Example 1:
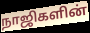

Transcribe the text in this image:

நாஜிகளின்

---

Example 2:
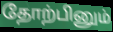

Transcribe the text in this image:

தோற்பினும்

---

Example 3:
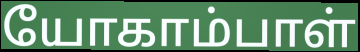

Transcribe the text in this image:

யோகாம்பாள்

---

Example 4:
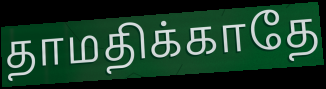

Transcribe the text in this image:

தாமதிக்காதே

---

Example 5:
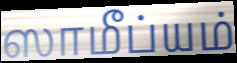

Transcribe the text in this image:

ஸாமீப்யம்